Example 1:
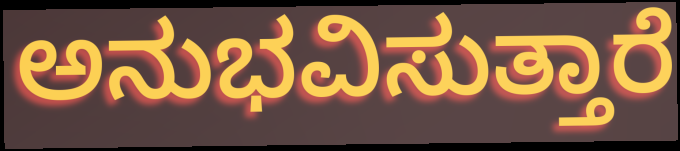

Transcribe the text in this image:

ಅನುಭವಿಸುತ್ತಾರೆ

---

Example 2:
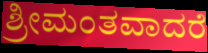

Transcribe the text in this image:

ಶ್ರೀಮಂತವಾದರೆ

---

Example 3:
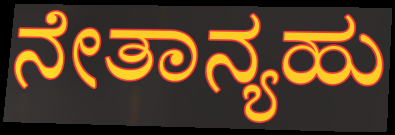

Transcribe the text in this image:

ನೇತಾನ್ಯಹು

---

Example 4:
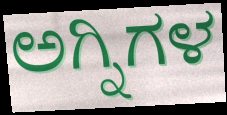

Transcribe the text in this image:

ಅಗ್ನಿಗಳ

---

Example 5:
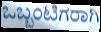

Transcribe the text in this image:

ಒಬ್ಬಂಟಿಗರಾಗಿ